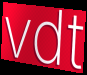
vdt